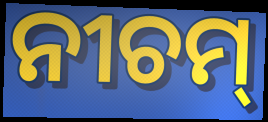
ନୀଚମ୍